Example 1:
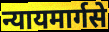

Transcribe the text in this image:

न्यायमार्गसे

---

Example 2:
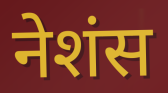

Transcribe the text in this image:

नेशंस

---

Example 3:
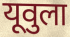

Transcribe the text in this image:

यूवुला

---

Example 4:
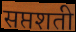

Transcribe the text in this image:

सप्तशती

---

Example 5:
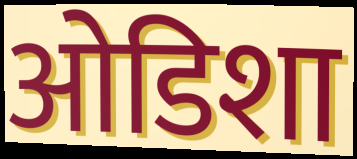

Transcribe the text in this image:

ओडिशा